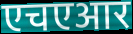
एचएआर